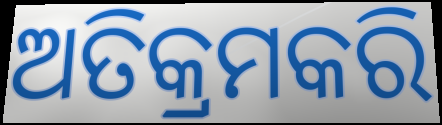
ଅତିକ୍ରମକରି